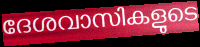
ദേശവാസികളുടെ